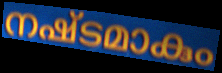
നഷ്‌ടമാകും